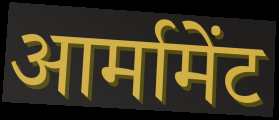
आर्मामेंट